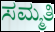
ಸಮ್ಮತಿ